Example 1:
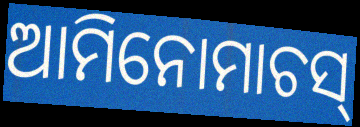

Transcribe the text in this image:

ଆମିନୋମାଚସ୍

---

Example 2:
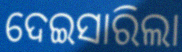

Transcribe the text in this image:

ଦେଇସାରିଲା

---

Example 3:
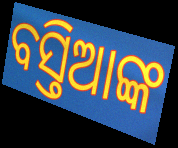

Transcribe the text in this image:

ବସ୍ତିଆଙ୍କ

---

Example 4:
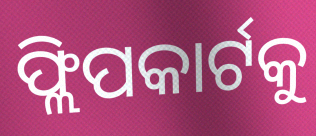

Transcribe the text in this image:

ଫ୍ଲିପକାର୍ଟକୁ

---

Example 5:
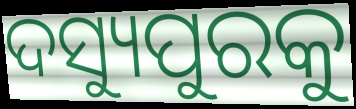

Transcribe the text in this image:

ଦସ୍ୟୁପୁରକୁ